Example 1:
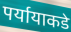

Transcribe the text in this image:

पर्यायाकडे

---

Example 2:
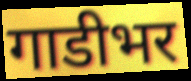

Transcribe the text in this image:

गाडीभर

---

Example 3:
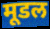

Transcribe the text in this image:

मूडल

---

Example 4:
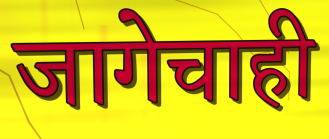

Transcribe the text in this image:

जागेचाही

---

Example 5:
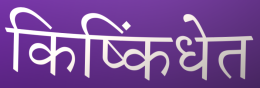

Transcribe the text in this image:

किष्किंधेत